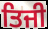
ਤਿਜੀ